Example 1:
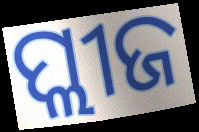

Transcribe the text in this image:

ପ୍ଲୀଜ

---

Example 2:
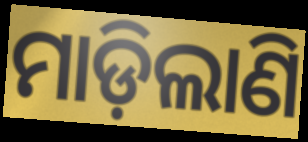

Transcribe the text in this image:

ମାଡ଼ିଲାଣି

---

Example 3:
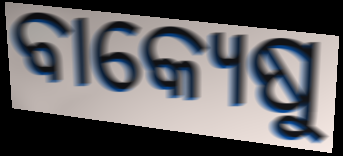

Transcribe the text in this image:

ବାକ୍ୟେଷୁ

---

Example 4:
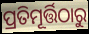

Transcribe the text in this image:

ପ୍ରତିମୂର୍ତ୍ତିଠାରୁ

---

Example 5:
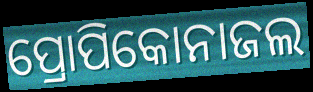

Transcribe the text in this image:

ପ୍ରୋପିକୋନାଜଲ